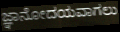
ಜ್ಞಾನೋದಯವಾಗಲು